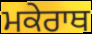
ਮਕੇਰਾਥ